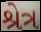
શ્રેત્ર